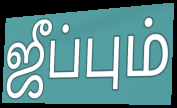
ஜீப்பும்